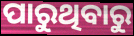
ପାରୁଥିବାରୁ